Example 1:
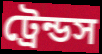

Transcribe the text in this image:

ট্রেন্ডস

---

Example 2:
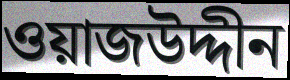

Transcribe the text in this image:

ওয়াজউদ্দীন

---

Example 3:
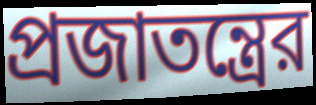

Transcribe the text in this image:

প্রজাতন্ত্রের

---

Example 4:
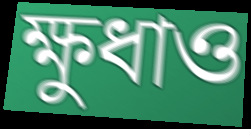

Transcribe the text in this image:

ক্ষুধাও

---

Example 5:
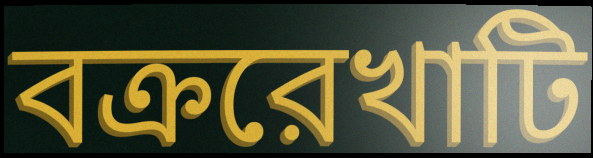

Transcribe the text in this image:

বক্ররেখাটি